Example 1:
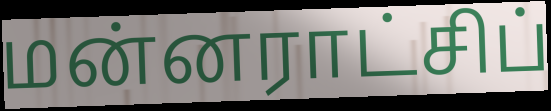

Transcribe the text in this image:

மன்னராட்சிப்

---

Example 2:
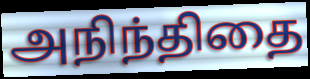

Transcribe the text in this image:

அநிந்திதை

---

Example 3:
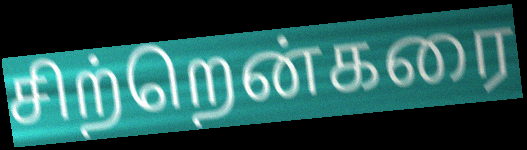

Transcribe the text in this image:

சிற்றென்கரை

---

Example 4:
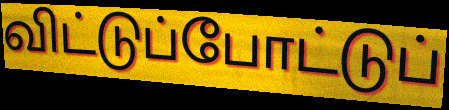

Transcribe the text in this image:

விட்டுப்போட்டுப்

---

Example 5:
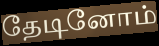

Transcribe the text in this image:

தேடினோம்